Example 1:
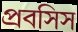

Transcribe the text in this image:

প্রবসিস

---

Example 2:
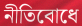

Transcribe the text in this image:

নীতিবোধে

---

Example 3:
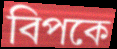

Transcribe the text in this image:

বিপকে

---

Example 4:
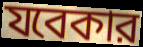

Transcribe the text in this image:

যবেকার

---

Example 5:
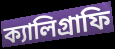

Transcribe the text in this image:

ক্যালিগ্রাফি